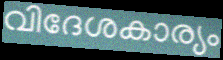
വിദേശകാര്യം